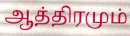
ஆத்திரமும்